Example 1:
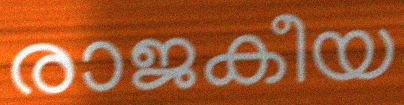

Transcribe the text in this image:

രാജകീയ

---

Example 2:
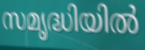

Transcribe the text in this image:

സമൃദ്ധിയിൽ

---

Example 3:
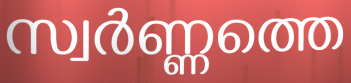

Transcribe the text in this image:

സ്വർണ്ണത്തെ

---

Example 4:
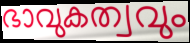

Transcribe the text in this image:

ഭാവുകത്വവും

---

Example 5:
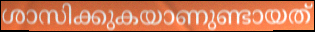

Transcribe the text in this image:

ശാസിക്കുകയാണുണ്ടായത്